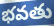
భవతు